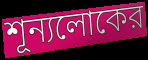
শূন্যলোকের